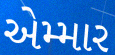
એમ્માર